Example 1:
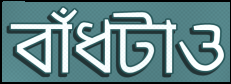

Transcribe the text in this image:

বাঁধটাও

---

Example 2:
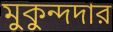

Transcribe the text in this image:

মুকুন্দদার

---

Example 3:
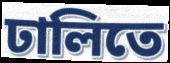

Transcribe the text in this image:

ঢালিতে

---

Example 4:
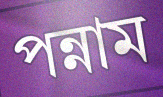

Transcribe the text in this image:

পন্নাম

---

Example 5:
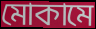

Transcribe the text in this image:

মোকামে